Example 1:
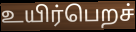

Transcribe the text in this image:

உயிர்பெறச்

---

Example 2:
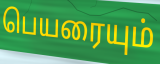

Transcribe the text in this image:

பெயரையும்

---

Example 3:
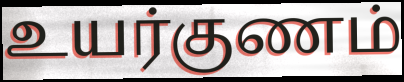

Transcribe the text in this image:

உயர்குணம்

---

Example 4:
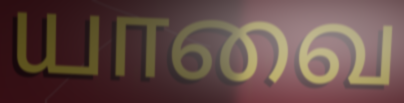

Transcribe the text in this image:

யாவை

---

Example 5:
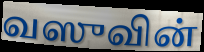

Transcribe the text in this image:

வஸுவின்